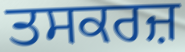
ਤਸਕਰਜ਼